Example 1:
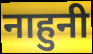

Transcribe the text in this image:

नाहुनी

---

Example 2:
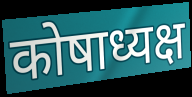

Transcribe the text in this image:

कोषाध्यक्ष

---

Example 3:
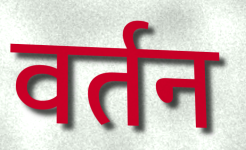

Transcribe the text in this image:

वर्तन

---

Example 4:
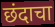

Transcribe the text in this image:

छंदाचा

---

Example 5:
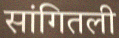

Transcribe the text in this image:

सांगितली